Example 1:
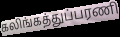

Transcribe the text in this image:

கலிங்கத்துப்பரணி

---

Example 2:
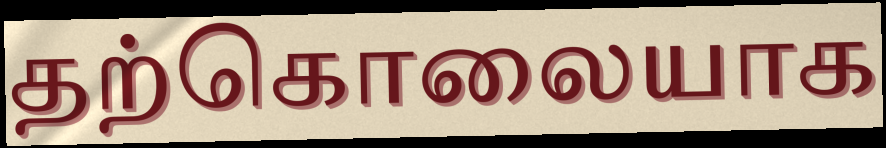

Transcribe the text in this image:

தற்கொலையாக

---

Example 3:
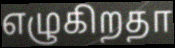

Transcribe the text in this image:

எழுகிறதா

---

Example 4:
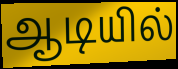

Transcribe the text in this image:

ஆடியில்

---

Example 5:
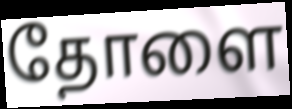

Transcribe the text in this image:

தோளை